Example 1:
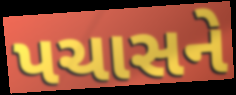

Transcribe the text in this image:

પચાસને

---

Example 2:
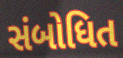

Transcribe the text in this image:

સંબોધિત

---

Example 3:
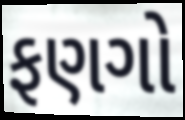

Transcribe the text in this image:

ફણગો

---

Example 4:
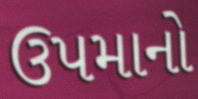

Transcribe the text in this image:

ઉપમાનો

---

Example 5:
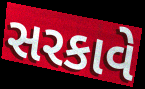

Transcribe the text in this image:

સરકાવે